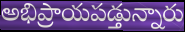
అభిప్రాయపడ్తున్నారు